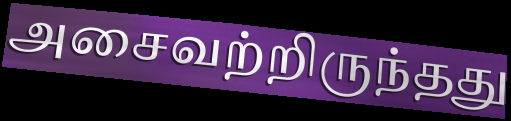
அசைவற்றிருந்தது